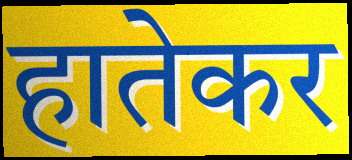
हातेकर